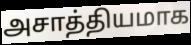
அசாத்தியமாக